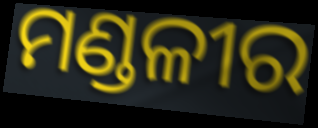
ମଣ୍ଡଳୀର